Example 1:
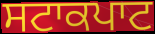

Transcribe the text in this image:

ਸਟਾਕਪਾਟ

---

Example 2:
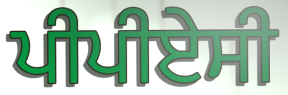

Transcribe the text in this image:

ਪੀਪੀਏਸੀ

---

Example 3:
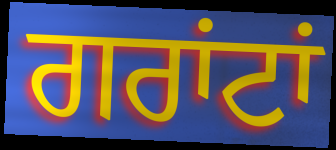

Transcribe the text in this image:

ਗਰਾਂਟਾਂ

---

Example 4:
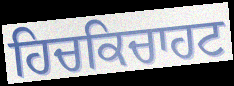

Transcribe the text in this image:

ਹਿਚਕਿਚਾਹਟ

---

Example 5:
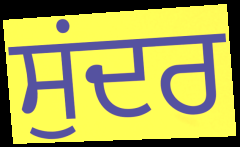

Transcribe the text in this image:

ਸੁਂਦਰ